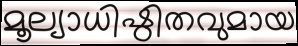
മൂല്യാധിഷ്ഠിതവുമായ